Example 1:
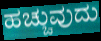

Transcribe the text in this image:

ಹಚ್ಚುವುದು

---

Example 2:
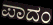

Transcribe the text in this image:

ಪಾದಂ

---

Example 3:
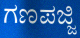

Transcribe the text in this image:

ಗಣಪಜ್ಜಿ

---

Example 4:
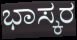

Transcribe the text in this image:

ಭಾಸ್ಕರ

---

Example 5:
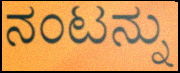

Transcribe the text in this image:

ನಂಟನ್ನು